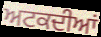
ਅਟਕਦੀਆਂ